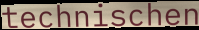
technischen